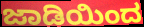
ಜಾಡಿಯಿಂದ